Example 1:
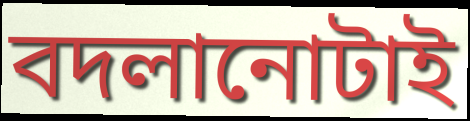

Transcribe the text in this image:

বদলানোটাই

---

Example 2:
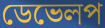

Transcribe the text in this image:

ডেভেলপ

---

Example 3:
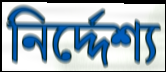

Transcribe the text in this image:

নির্দ্দেশ্য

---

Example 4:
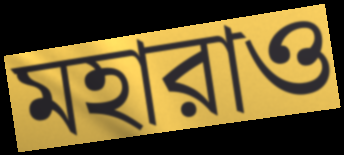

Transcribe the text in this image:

মহারাও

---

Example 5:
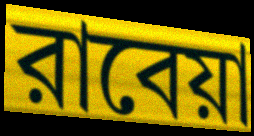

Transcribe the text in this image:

রাবেয়া